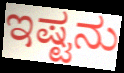
ಇಷ್ಟನು